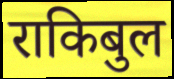
राकिबुल